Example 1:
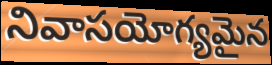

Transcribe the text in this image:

నివాసయోగ్యమైన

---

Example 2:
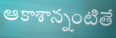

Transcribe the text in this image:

ఆకాశాన్నంటితే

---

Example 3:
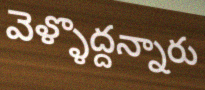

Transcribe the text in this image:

వెళ్ళొద్దన్నారు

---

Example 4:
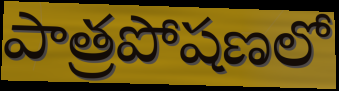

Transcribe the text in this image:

పాత్రపోషణలో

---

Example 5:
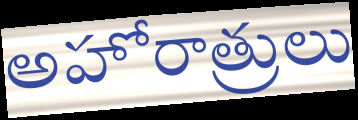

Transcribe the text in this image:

అహోరాత్రులు